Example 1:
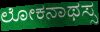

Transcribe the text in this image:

ಲೋಕನಾಥಸ್ಸ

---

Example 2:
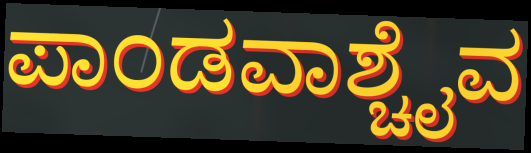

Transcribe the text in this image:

ಪಾಂಡವಾಶ್ಚೈವ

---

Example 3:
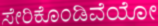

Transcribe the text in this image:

ಸೇರಿಕೊಂಡಿವೆಯೋ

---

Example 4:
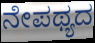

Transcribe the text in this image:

ನೇಪಥ್ಯದ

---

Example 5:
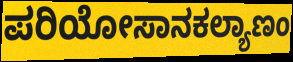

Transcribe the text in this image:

ಪರಿಯೋಸಾನಕಲ್ಯಾಣಂ